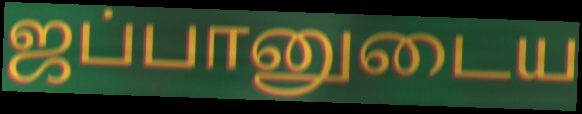
ஜப்பானுடைய